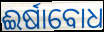
ଈର୍ଷାବୋଧ